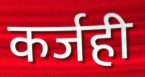
कर्जही